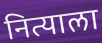
नित्याला